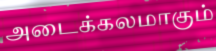
அடைக்கலமாகும்